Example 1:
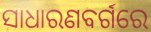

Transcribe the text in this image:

ସାଧାରଣବର୍ଗରେ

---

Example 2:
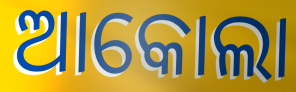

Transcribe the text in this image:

ଆକୋଲା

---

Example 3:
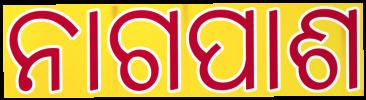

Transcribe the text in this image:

ନାଗପାଶ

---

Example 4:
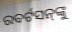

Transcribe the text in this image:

ରବର୍ଟସନ୍‌ଙ୍କୁ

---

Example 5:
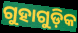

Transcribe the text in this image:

ଗୁହାଗୁଡ଼ିକ